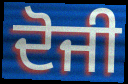
ਦੋਜੀ